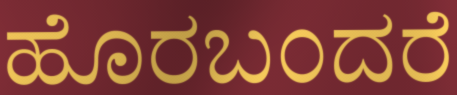
ಹೊರಬಂದರೆ